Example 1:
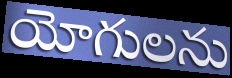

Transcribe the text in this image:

యోగులను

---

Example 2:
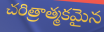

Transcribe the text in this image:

చరిత్రాత్మకమైన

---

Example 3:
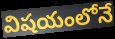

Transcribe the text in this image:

విషయంలోనే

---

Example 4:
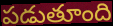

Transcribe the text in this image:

పడుతూంది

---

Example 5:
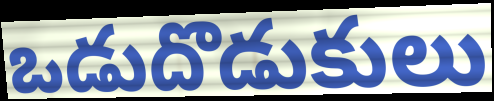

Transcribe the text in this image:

ఒడుదొడుకులు